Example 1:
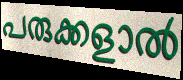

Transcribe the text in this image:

പരുക്കളാൽ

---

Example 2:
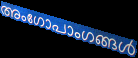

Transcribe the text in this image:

അംഗോപാംഗങ്ങൾ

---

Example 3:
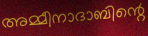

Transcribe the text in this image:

അമ്മീനാദാബിന്റെ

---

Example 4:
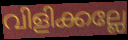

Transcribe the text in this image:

വിളിക്കല്ലേ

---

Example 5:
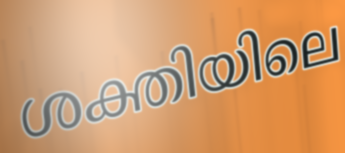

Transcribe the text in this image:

ശക്തിയിലെ